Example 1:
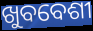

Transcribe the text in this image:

ଖୁବବେଶୀ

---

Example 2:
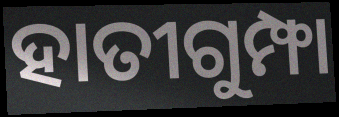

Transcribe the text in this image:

ହାତୀଗୁମ୍ଫା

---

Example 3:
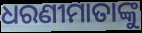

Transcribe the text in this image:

ଧରଣୀମାତାଙ୍କୁ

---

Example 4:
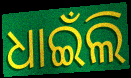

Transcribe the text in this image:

ଧାଇଁଲି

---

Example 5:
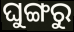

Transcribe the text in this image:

ଘୁଙ୍ଗରୁ